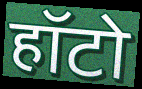
हॉटो